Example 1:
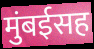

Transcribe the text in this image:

मुंबईसह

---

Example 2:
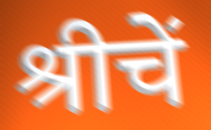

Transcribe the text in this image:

श्रीचें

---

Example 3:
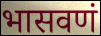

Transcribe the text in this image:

भासवणं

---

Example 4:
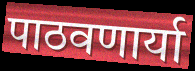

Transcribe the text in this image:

पाठवणार्या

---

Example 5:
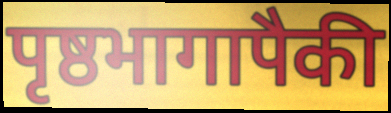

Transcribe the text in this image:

पृष्ठभागापैकी